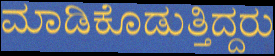
ಮಾಡಿಕೊಡುತ್ತಿದ್ದರು